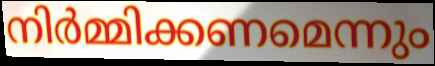
നിർമ്മിക്കണമെന്നും